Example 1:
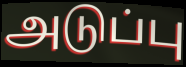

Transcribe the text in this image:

அடுப்பு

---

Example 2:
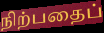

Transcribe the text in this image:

நிற்பதைப்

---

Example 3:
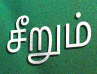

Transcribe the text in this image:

சீறும்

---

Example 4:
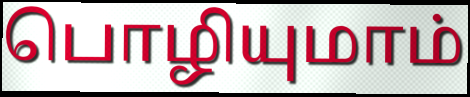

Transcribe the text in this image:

பொழியுமாம்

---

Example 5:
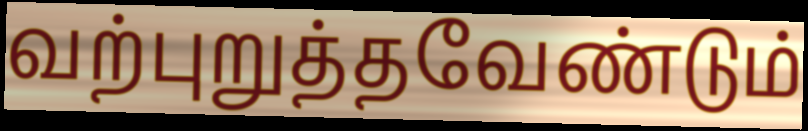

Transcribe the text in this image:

வற்புறுத்தவேண்டும்